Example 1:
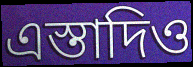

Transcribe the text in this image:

এস্তাদিও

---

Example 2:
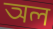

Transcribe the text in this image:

অল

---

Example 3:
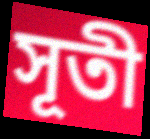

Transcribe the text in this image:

সূতী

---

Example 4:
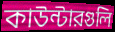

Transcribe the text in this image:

কাউন্টারগুলি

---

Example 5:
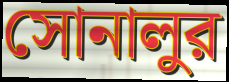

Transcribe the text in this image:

সোনালুর